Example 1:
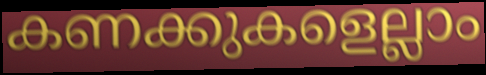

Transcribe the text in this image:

കണക്കുകളെല്ലാം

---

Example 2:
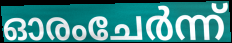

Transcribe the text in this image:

ഓരംചേർന്ന്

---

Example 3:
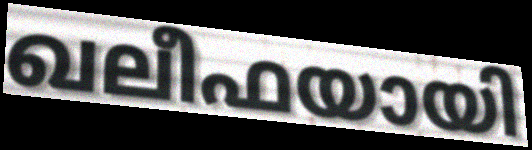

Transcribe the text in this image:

ഖലീഫയായി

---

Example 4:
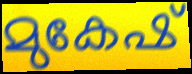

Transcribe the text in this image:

മുകേഷ്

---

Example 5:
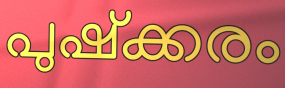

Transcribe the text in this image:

പുഷ്ക്കരം